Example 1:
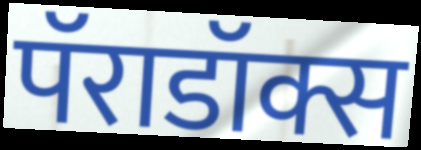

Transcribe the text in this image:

पॅराडॉक्स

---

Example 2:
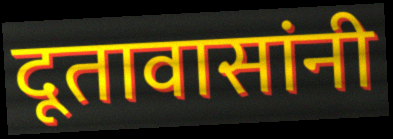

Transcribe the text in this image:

दूतावासांनी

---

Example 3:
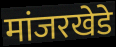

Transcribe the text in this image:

मांजरखेडे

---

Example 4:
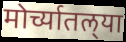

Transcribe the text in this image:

मोर्च्यातल्या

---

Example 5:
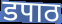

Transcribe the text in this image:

डपाठ